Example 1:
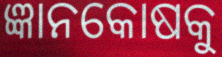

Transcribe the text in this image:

ଜ୍ଞାନକୋଷକୁ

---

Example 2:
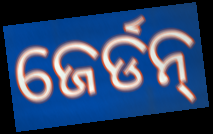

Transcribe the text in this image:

ଜେର୍ଡନ୍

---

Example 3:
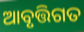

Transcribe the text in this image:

ଆବୃତ୍ତିଗତ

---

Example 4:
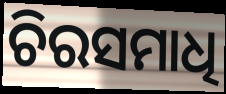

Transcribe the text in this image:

ଚିରସମାଧି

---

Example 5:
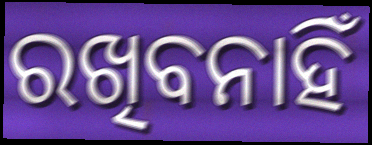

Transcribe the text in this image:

ରଖିବନାହିଁ